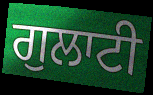
ਗੁਲਾਟੀ